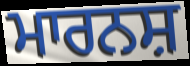
ਮਾਰਨਸ਼